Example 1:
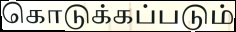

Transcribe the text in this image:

கொடுக்கப்படும்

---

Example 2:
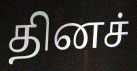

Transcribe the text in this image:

தினச்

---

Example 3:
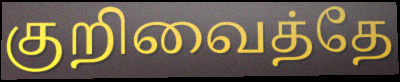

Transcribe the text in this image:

குறிவைத்தே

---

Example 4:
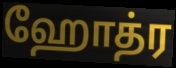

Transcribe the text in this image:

ஹோத்ர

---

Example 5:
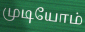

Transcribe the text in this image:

முடியோம்